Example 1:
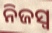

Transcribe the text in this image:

ନିଜସ୍ୱ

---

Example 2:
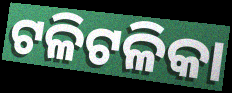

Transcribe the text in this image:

ଟଳିଟଳିକା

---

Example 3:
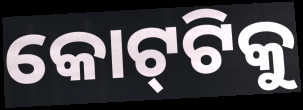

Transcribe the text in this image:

କୋଟ୍‌ଟିକୁ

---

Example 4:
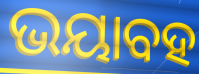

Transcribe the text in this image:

ଭୟାବହ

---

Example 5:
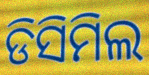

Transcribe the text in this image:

ଡିସିମିଲ